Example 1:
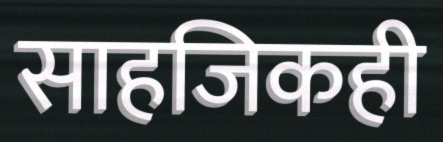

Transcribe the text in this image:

साहजिकही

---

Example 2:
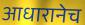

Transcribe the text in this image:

आधारानेच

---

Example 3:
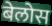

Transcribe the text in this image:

बेलोस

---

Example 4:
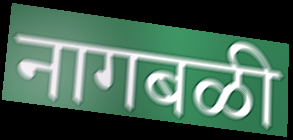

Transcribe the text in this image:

नागबळी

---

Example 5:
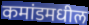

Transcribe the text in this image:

कमांडमधील